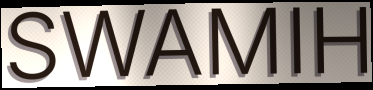
SWAMIH